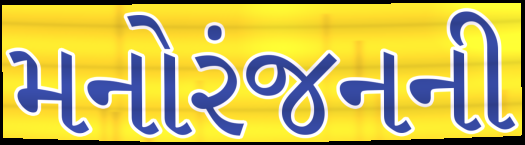
મનોરંજનની